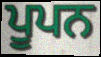
ਪੂਪਨ